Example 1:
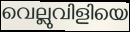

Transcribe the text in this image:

വെല്ലുവിളിയെ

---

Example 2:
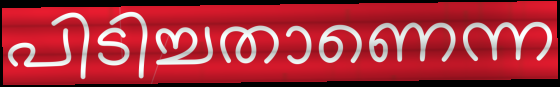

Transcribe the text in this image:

പിടിച്ചതാണെന്ന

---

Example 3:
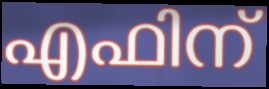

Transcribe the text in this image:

എഫിന്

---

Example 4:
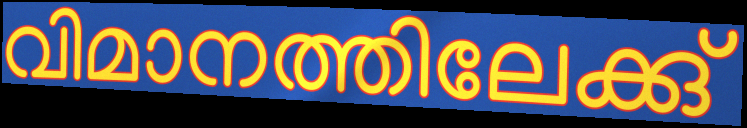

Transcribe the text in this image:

വിമാനത്തിലേക്കു്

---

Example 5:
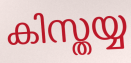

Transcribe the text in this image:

കിസ്തയ്യ